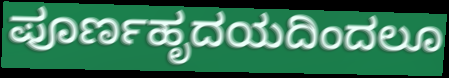
ಪೂರ್ಣಹೃದಯದಿಂದಲೂ